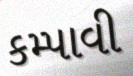
કમ્પાવી